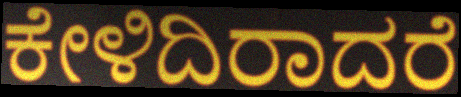
ಕೇಳಿದಿರಾದರೆ